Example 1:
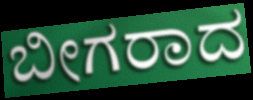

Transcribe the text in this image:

ಬೀಗರಾದ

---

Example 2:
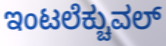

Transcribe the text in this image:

ಇಂಟಲೆಕ್ಚುವಲ್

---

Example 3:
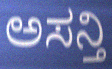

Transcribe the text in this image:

ಅಸನ್ತಿ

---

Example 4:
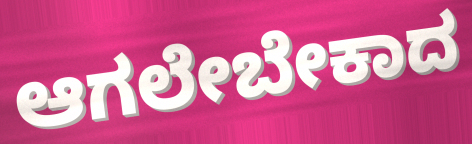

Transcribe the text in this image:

ಆಗಲೇಬೇಕಾದ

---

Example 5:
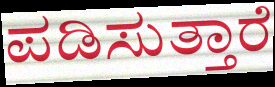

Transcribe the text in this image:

ಪಡಿಸುತ್ತಾರೆ